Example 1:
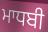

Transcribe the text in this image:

ਮਾਧਬੀ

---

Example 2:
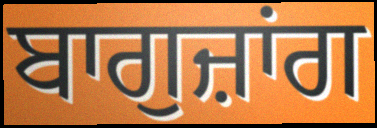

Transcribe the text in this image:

ਬਾਗੁਜ਼ਾਂਗ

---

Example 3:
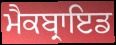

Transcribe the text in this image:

ਮੈਕਬ੍ਰਾਇਡ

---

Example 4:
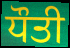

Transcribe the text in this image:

ਧੌਤੀ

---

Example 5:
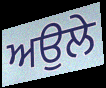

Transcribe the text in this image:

ਅਉਲੇ